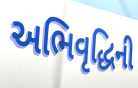
અભિવૃદ્ધિની